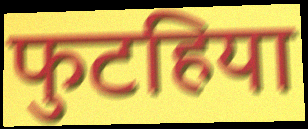
फुटहिया